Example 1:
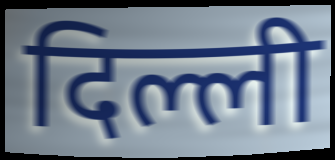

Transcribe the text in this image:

दिल्ली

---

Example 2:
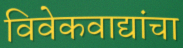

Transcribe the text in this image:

विवेकवाद्यांचा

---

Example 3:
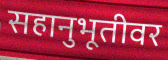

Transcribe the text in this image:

सहानुभूतीवर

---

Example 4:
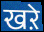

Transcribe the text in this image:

खऱे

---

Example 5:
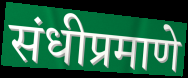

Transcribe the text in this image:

संधीप्रमाणे